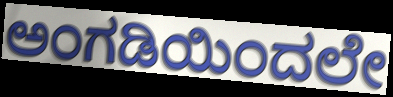
ಅಂಗಡಿಯಿಂದಲೇ